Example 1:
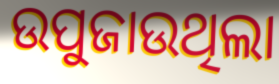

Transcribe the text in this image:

ଉପୁଜାଉଥିଲା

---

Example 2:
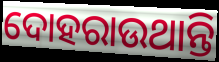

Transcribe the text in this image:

ଦୋହରାଉଥାନ୍ତି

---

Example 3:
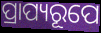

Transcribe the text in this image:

ପ୍ରାପ୍ୟରୂପେ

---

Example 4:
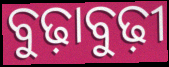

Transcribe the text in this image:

ବୁଢ଼ାବୁଢ଼ୀ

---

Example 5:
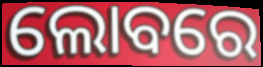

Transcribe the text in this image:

ଲୋବରେ